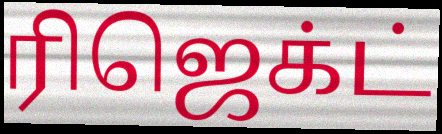
ரிஜெக்ட்